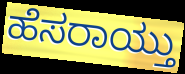
ಹೆಸರಾಯ್ತು